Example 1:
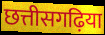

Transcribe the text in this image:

छत्तीसगढ़िया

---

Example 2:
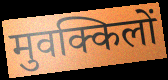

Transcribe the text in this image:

मुवक्किलों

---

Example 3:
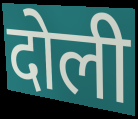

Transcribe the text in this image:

दोली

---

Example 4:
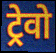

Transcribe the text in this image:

ट्रेवो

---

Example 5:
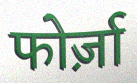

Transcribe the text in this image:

फोर्ज़ा